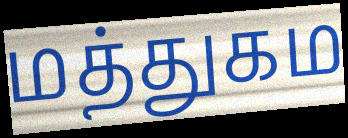
மத்துகம